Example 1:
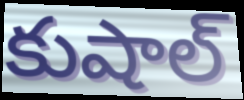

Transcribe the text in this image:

కుషాల్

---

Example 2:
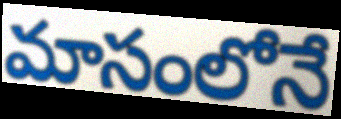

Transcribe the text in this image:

మాసంలోనే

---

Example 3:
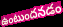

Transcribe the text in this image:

ఉంటుందనడం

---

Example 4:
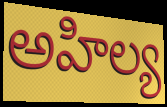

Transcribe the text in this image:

అహిల్య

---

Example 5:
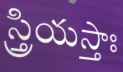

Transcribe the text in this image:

స్త్రియస్తాః